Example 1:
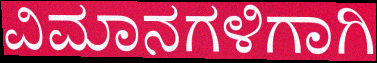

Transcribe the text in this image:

ವಿಮಾನಗಳಿಗಾಗಿ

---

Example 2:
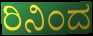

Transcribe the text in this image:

ರಿನಿಂದ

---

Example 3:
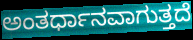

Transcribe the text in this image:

ಅಂತರ್ಧಾನವಾಗುತ್ತದೆ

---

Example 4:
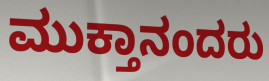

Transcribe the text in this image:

ಮುಕ್ತಾನಂದರು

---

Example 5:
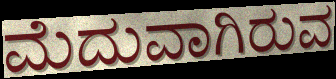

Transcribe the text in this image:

ಮೆದುವಾಗಿರುವ